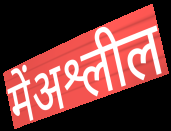
मेंअश्लील